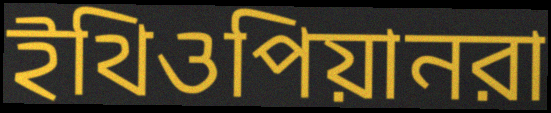
ইথিওপিয়ানরা